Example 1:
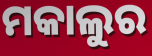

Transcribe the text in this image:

ମକାଲୁର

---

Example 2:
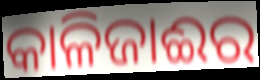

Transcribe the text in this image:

କାଳିଜାଈର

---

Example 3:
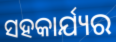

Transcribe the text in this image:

ସହକାର୍ଯ୍ୟର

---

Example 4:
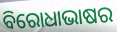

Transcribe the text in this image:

ବିରୋଧାଭାଷର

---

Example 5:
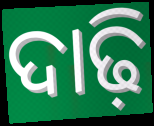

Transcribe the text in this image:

ଦାଢ଼ି